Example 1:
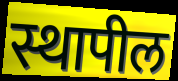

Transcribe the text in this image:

स्थापील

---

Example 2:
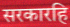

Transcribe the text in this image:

सरकारहि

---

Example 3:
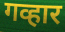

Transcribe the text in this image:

गव्हार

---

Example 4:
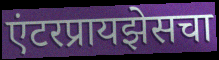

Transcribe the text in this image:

एंटरप्रायझेसचा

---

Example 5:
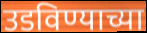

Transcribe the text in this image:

उडविण्याच्या